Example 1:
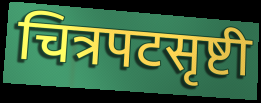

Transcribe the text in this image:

चित्रपटसृष्टी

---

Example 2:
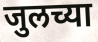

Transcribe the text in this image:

जुलच्या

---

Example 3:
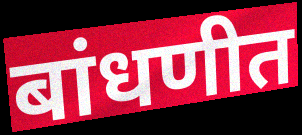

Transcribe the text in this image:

बांधणीत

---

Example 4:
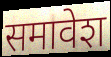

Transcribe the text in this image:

समावेश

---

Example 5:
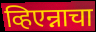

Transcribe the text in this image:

व्हिएन्नाचा